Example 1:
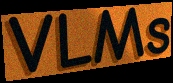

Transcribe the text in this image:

VLMs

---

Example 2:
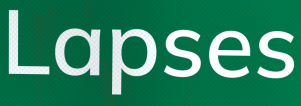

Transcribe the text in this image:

Lapses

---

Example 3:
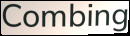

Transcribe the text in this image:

Combing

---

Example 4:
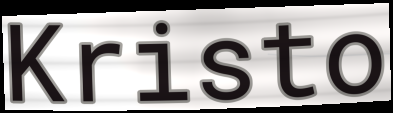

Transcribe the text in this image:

Kristo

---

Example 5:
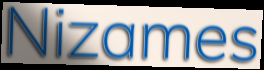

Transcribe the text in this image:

Nizames